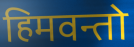
हिमवन्तो